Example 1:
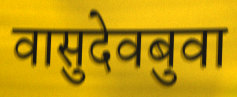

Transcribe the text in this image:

वासुदेवबुवा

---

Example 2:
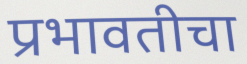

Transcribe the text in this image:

प्रभावतीचा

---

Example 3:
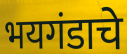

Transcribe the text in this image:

भयगंडाचे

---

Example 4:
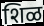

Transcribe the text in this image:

शिळ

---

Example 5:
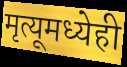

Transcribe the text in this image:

मृत्यूमध्येही